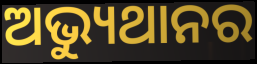
ଅଭ୍ୟୁଥାନର